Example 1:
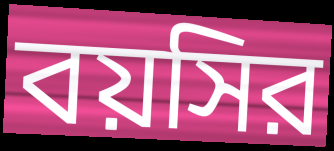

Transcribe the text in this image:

বয়সির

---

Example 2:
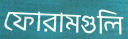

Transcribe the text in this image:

ফোরামগুলি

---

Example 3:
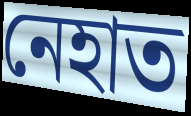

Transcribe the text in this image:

নেহাত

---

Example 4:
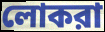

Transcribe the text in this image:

লোকরা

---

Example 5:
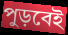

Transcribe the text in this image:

পুড়বেই